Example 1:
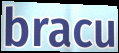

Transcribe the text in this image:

bracu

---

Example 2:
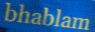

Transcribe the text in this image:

bhablam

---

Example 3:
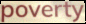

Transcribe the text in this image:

poverty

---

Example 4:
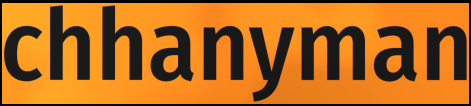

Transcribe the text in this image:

chhanyman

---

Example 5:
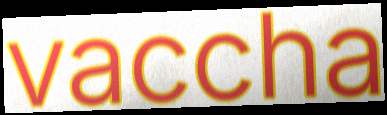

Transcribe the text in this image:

vaccha